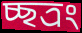
চ্ছত্রং